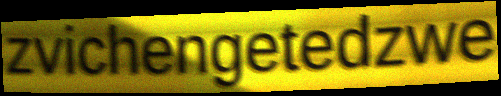
zvichengetedzwe